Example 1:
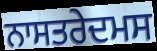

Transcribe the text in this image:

ਨਾਸਤਰੇਦਮਸ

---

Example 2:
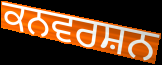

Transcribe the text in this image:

ਕਨਵਰਸ਼ਨ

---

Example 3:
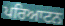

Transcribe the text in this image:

ਪਰਿਆਟਨ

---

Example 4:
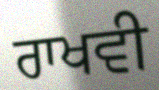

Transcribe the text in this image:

ਰਾਖਵੀ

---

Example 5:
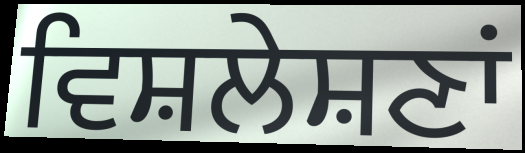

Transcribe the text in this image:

ਵਿਸ਼ਲੇਸ਼ਣਾਂ